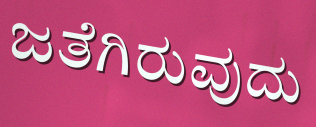
ಜತೆಗಿರುವುದು